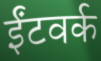
ईंटवर्क